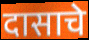
दासाचे